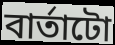
বাৰ্তাটো